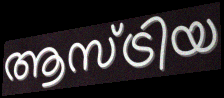
ആസ്ട്രിയ